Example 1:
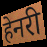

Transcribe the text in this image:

हेनरी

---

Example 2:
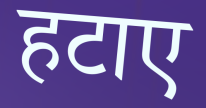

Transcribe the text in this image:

हटाए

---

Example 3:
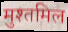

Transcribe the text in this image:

मुश्तमिल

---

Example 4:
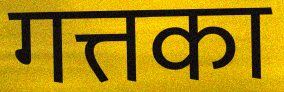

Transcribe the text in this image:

गत्तका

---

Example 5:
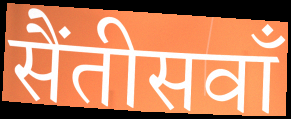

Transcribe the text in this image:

सैंतीसवाँ